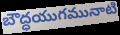
బౌద్ధయుగమునాటి